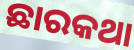
ଛାରକଥା